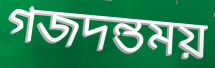
গজদন্তময়